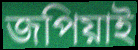
জপিয়াই